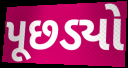
પૂછડ્યો